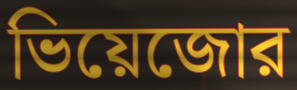
ভিয়েজোর